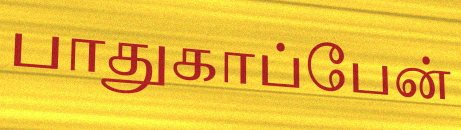
பாதுகாப்பேன்